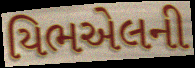
યિભએલની